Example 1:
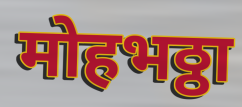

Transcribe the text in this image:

मोहभठ्ठा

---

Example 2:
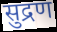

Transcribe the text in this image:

सुद्रण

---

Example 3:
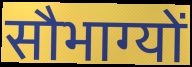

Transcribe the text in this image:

सौभाग्यों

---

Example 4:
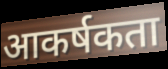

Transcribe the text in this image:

आकर्षकता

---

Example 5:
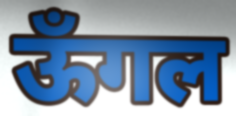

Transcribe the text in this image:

ऊँगल